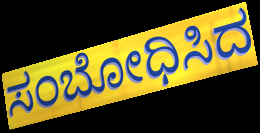
ಸಂಬೋಧಿಸಿದ